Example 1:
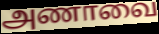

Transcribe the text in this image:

அணாவை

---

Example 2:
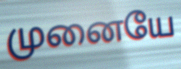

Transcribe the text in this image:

முனையே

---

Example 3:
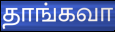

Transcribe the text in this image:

தாங்கவா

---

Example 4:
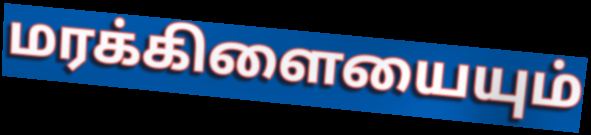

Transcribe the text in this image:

மரக்கிளையையும்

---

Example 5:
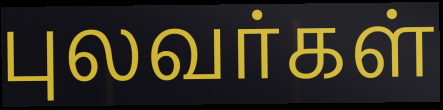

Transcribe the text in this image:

புலவர்கள்